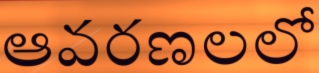
ఆవరణలలో